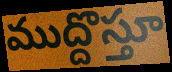
ముద్దొస్తూ